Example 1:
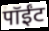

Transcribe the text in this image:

पॉईंट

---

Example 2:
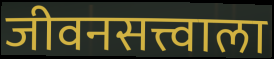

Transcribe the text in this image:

जीवनसत्त्वाला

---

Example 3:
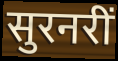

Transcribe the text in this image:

सुरनरीं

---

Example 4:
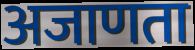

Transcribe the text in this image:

अजाणता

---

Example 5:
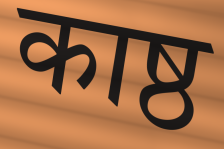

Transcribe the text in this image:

काष्ठ